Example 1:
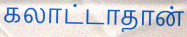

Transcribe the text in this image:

கலாட்டாதான்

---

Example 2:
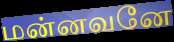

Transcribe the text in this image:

மன்னவனே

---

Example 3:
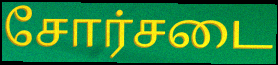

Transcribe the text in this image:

சோர்சடை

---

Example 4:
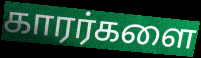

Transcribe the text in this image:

காரர்களை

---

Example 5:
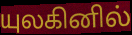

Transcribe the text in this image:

யுலகினில்